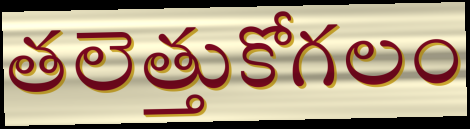
తలెత్తుకోగలం